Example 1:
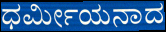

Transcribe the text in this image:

ಧರ್ಮೀಯನಾದ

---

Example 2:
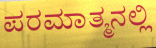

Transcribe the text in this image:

ಪರಮಾತ್ಮನಲ್ಲಿ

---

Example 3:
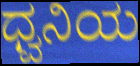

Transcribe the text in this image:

ಧ್ವನಿಯ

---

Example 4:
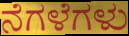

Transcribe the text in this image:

ನೆಗಳೆಗಳು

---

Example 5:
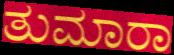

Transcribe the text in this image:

ತುಮಾರಾ